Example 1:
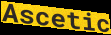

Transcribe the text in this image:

Ascetic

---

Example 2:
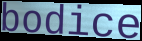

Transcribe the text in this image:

bodice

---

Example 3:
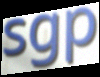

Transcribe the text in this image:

sgp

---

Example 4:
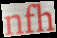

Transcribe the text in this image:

nfh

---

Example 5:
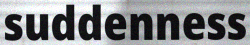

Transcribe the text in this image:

suddenness